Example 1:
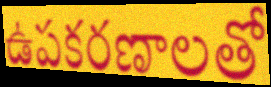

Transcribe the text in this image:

ఉపకరణాలతో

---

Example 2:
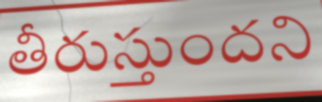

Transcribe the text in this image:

తీరుస్తుందని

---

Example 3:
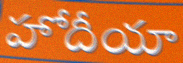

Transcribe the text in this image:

హోదీయా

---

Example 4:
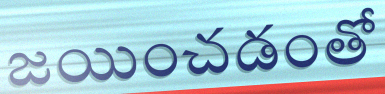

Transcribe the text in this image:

జయించడంతో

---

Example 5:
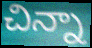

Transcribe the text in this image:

చిన్నా